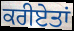
ਕਰੀਏਤਾਂ